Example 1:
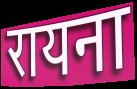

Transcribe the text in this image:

रायना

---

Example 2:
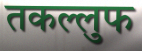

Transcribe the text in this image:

तकल्लुफ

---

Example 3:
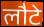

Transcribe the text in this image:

लौटे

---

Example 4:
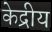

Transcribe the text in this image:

केद्रीय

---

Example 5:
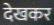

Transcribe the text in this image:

देखकर